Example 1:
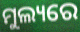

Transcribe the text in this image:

ମୁଲ୍ୟରେ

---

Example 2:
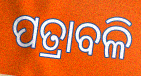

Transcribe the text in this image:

ପତ୍ରାବଳି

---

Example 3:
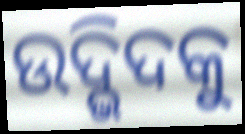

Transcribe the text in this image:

ଉଦ୍ଭିଦକୁ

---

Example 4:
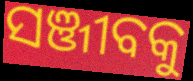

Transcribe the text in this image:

ସଞ୍ଜୀବକୁ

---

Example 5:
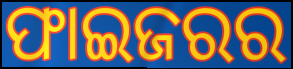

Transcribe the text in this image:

ଫାଇଜରର